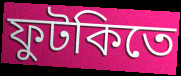
ফুটকিতে